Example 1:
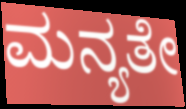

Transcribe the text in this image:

ಮನ್ಯತೇ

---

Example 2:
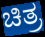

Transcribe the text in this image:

ಚಿತ್ರ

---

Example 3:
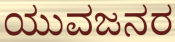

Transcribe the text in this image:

ಯುವಜನರ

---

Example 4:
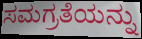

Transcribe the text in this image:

ಸಮಗ್ರತೆಯನ್ನು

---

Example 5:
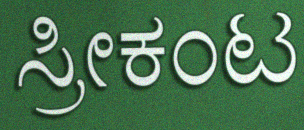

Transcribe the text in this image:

ಸ್ರೀಕಂಟ